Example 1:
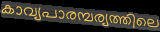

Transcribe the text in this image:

കാവ്യപാരമ്പര്യത്തിലെ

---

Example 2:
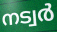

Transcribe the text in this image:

നട്വർ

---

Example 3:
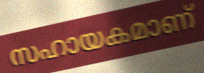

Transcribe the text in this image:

സഹായകമാണ്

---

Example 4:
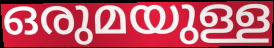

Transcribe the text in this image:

ഒരുമയുള്ള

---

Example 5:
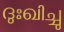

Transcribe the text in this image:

ദുഃഖിച്ചു